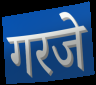
गरजे